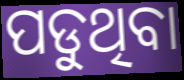
ପଡୁଥିବା